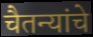
चैतन्यांचे